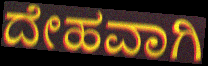
ದೇಹವಾಗಿ